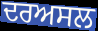
ਦਰਅਸਲ